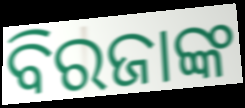
ବିରଜାଙ୍କ